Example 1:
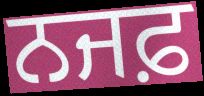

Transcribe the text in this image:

ਨਜਫ਼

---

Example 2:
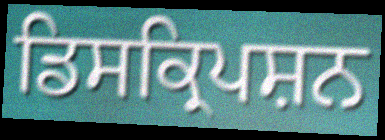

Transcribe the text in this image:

ਡਿਸਕ੍ਰਿਪਸ਼ਨ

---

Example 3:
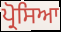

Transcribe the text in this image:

ਪ੍ਰੋਸਿਆ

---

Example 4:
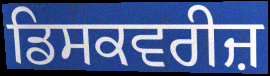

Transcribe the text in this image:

ਡਿਸਕਵਰੀਜ਼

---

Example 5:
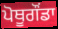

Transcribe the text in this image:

ਪੋਥੂਗੌਂਡਾ